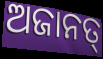
ଅଜାନତ୍